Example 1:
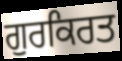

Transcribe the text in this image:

ਗੁਰਕਿਰਤ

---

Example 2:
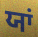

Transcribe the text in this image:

ਯਾਂ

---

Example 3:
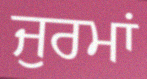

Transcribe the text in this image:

ਜੁਰਮਾਂ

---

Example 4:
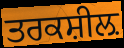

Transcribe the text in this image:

ਤਰਕਸ਼ੀਲ਼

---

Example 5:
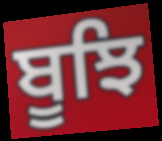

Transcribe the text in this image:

ਬੂਝਿ